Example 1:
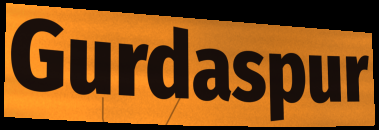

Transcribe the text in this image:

Gurdaspur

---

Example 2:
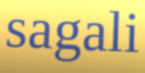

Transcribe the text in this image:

sagali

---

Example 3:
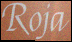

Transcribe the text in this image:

Roja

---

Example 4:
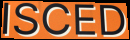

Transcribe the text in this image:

ISCED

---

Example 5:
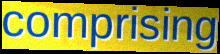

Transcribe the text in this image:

comprising